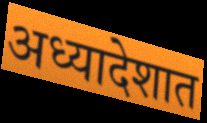
अध्यादेशात